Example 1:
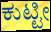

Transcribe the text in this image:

ಕುಟ್ಟೀ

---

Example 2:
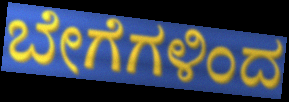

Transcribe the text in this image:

ಬೇಗೆಗಳಿಂದ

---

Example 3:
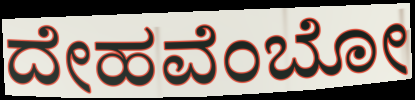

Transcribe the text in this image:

ದೇಹವೆಂಬೋ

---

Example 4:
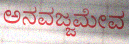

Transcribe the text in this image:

ಅನವಜ್ಜಮೇವ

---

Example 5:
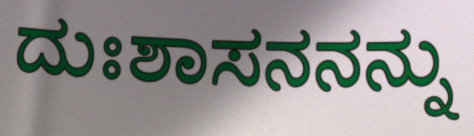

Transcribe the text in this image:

ದುಃಶಾಸನನನ್ನು